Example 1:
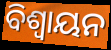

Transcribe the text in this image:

ବିଶ୍ଵାୟନ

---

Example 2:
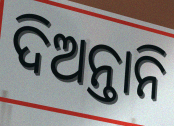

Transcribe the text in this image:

ଦିଅନ୍ତାନି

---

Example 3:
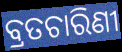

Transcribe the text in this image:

ବ୍ରତଚାରିଣୀ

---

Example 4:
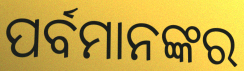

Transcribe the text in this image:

ପର୍ବମାନଙ୍କର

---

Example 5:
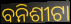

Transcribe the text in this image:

ବନିଶୀଟା